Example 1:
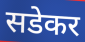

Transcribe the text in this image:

सडेकर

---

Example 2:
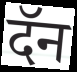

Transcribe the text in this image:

दॅन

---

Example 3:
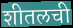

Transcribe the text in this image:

शीतलची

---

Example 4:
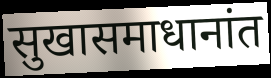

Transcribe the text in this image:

सुखासमाधानांत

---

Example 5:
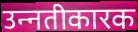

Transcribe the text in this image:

उन्नतीकारक